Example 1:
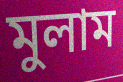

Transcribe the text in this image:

মুলাম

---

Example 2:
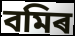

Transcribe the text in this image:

বমিৰ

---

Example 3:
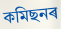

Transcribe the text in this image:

কমিছনৰ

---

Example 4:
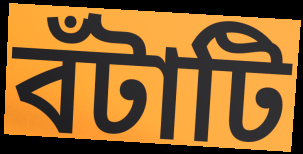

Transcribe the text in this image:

বঁটাটি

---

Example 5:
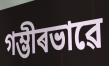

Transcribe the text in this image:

গম্ভীৰভাৱে